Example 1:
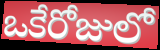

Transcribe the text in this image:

ఒకేరోజులో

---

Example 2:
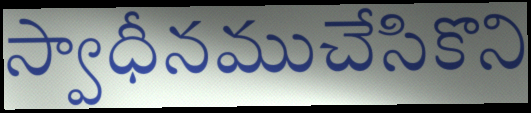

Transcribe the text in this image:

స్వాధీనముచేసికొని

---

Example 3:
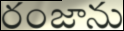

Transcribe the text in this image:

రంజాను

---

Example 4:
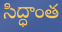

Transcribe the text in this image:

సిద్ధాంత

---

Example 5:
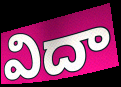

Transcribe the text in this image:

విదా